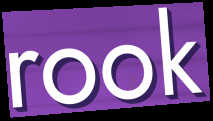
rook